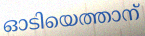
ഓടിയെത്താന്